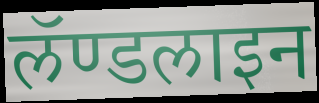
लॅण्डलाइन